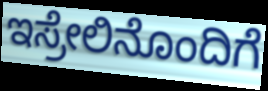
ಇಸ್ರೇಲಿನೊಂದಿಗೆ